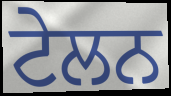
ਟੇਲਨ